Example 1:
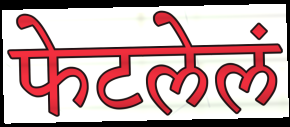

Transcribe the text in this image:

फेटलेलं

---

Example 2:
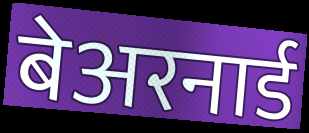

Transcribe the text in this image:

बेअरनार्ड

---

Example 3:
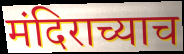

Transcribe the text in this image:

मंदिराच्याच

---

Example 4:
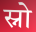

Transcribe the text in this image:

स्नो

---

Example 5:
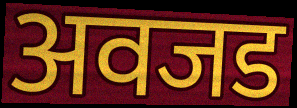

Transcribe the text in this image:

अवजड